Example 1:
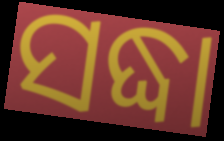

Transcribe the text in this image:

ସଦ୍ଧା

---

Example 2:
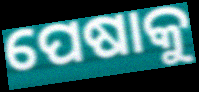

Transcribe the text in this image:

ପେଷାକୁ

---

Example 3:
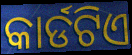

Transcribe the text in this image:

କାର୍ଡଟିଏ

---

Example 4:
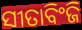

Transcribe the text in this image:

ସୀତାବିଂଜି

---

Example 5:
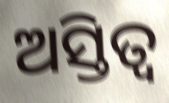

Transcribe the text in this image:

ଅସ୍ତିତ୍ଵ